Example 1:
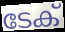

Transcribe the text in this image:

ടേക്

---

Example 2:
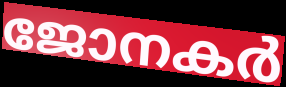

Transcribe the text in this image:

ജോനകർ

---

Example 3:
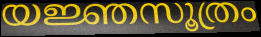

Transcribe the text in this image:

യജ്ഞസൂത്രം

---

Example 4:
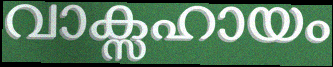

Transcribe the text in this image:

വാക്സഹായം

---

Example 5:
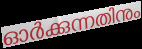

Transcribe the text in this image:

ഓർക്കുന്നതിനും